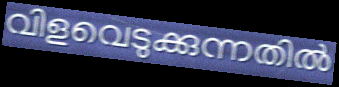
വിളവെടുക്കുന്നതിൽ